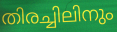
തിരച്ചിലിനും